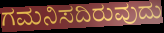
ಗಮನಿಸದಿರುವುದು